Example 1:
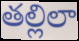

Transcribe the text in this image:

తల్లిలా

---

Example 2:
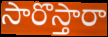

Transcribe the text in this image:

సారొస్తారా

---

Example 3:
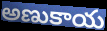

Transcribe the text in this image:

అణుకాయ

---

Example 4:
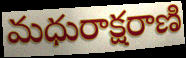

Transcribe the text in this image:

మధురాక్షరాణి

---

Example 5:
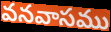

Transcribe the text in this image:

వనవాసము